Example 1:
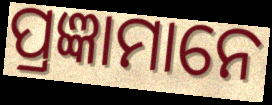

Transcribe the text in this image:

ପ୍ରଜ୍ଞାମାନେ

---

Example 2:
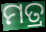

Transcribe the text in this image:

ମତ୍ର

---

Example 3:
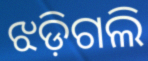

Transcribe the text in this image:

ଝଡ଼ିଗଲି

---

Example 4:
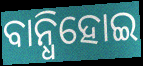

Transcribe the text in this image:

ବାନ୍ଧିହୋଇ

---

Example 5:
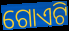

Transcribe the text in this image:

ଗୋଏଟି